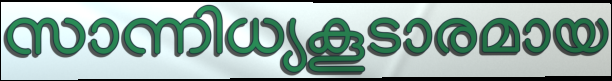
സാന്നിധ്യകൂടാരമായ